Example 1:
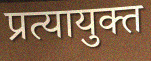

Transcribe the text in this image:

प्रत्यायुक्त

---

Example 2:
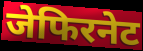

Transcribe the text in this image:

जेफिरनेट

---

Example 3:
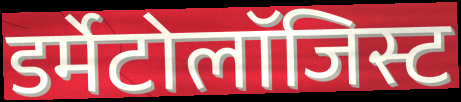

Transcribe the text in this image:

डर्मेटोलॉजिस्ट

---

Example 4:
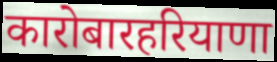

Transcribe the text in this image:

कारोबारहरियाणा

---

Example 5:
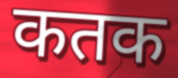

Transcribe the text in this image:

कतक